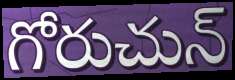
గోరుచున్